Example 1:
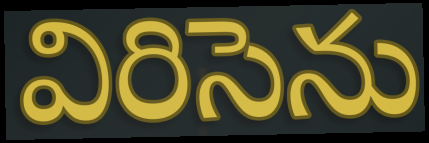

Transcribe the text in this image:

విరిసెను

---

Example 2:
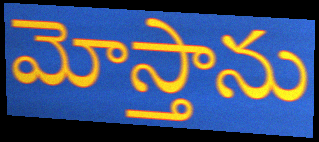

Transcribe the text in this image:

మోస్తాను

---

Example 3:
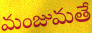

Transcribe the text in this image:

మంజుమతే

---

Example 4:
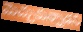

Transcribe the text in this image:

మెచ్చుకున్నాడని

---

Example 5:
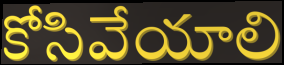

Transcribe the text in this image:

కోసివేయాలి